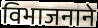
विभाजनाने